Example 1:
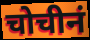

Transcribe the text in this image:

चोचीनं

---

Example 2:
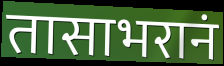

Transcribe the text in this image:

तासाभरानं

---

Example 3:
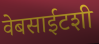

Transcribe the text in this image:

वेबसाईटशी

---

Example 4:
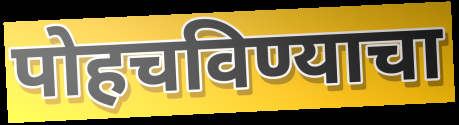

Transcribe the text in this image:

पोहचविण्याचा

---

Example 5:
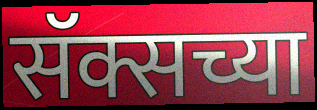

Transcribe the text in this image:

सॅक्सच्या